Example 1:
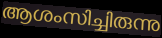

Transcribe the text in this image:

ആശംസിച്ചിരുന്നു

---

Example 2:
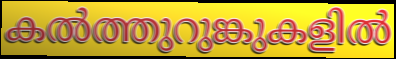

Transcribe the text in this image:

കൽത്തുറുങ്കുകളിൽ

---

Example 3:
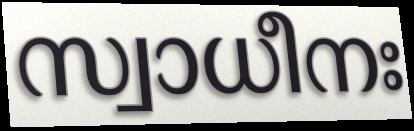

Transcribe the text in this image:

സ്വാധീനഃ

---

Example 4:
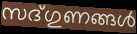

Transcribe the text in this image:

സദ്ഗുണങ്ങൾ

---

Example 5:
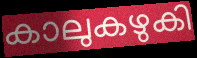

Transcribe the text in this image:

കാലുകഴുകി